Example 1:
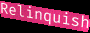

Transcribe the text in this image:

Relinquish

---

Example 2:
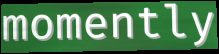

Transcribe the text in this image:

momently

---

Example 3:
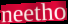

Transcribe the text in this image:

neetho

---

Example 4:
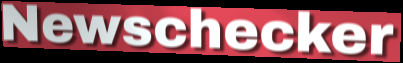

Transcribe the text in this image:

Newschecker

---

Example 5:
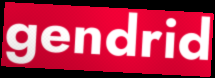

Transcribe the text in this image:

gendrid